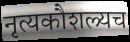
नृत्यकौशल्यच